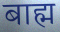
बाह्म